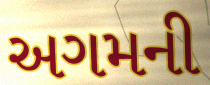
અગમની